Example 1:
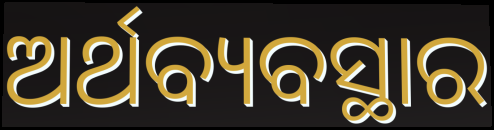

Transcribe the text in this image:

ଅର୍ଥବ୍ୟବସ୍ଥାର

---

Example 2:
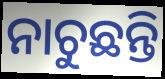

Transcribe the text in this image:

ନାଚୁଛନ୍ତି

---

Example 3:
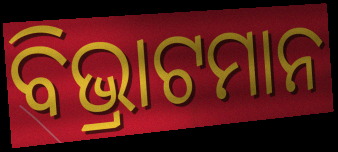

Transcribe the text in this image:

ବିଭ୍ରାଟମାନ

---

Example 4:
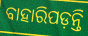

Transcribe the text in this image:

ବାହାରିପଡ଼ନ୍ତି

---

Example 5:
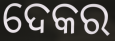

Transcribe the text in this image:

ଦେକର